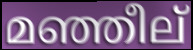
മഞ്ഞീല്